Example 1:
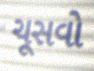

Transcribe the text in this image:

ચૂસવો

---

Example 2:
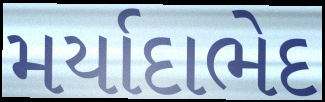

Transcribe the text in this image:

મર્યાદાભેદ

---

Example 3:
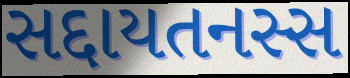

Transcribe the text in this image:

સદ્દાયતનસ્સ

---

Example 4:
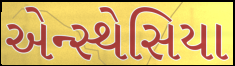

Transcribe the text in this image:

એન્સ્થેસિયા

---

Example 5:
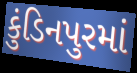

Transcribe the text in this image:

કુંડિનપુરમાં